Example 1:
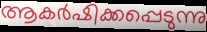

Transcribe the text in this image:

ആകർഷിക്കപ്പെടുന്നു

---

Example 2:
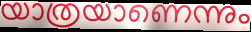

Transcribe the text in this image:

യാത്രയാണെന്നും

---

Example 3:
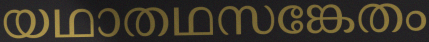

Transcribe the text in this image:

യഥാതഥസങ്കേതം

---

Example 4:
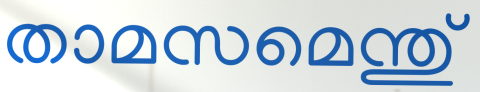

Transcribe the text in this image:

താമസമെന്തു്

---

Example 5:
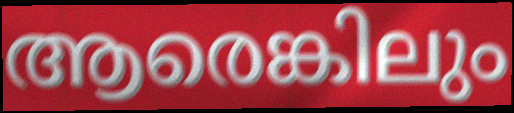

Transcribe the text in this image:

ആരെങ്കിലും